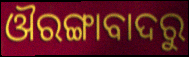
ଔରଙ୍ଗାବାଦରୁ